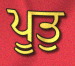
ਪੂਤੁ